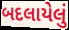
બદલાયેલું